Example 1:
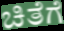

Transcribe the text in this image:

ಚಿತೆಗೆ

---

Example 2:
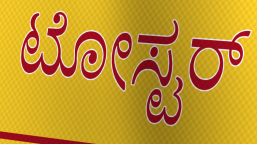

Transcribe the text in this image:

ಟೋಸ್ಟರ್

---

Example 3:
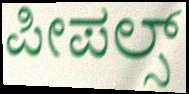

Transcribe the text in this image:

ಪೀಪಲ್ಸ್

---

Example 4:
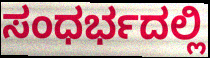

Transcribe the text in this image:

ಸಂಧರ್ಭದಲ್ಲಿ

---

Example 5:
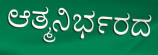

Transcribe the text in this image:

ಆತ್ಮನಿರ್ಭರದ